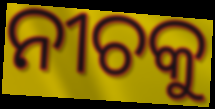
ନୀଚକୁ